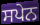
ਸਪੇਨ